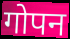
गोपन